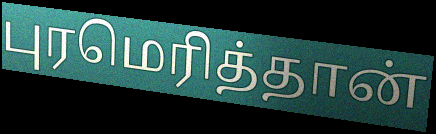
புரமெரித்தான்